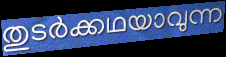
തുടർക്കഥയാവുന്ന